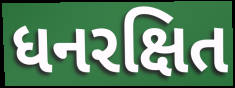
ધનરક્ષિત